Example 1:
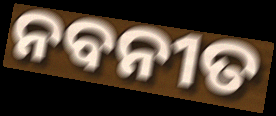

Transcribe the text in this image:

ନବନୀତ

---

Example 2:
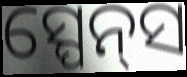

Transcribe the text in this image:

ସ୍ପେନ୍‌ସ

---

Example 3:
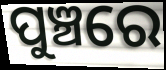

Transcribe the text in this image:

ପୁଞ୍ଚରେ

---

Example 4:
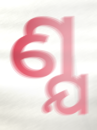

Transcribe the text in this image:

ଣ୍ଯ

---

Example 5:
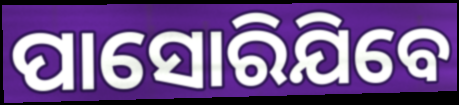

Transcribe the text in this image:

ପାସୋରିଯିବେ